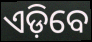
ଏଡ଼ିବେ